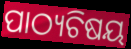
ପାଠ୍ୟଚିଷୟ